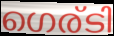
ഗെര്ടി